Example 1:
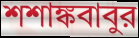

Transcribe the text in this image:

শশাঙ্কবাবুর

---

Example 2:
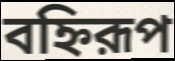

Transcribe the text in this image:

বহ্নিরূপ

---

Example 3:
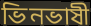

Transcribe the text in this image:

ভিনভাষী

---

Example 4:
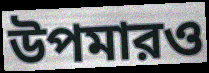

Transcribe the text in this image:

উপমারও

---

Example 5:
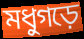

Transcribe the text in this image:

মধুগড়ে